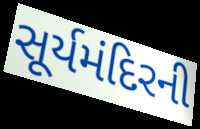
સૂર્યમંદિરની